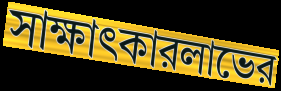
সাক্ষাৎকারলাভের